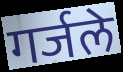
गर्जले